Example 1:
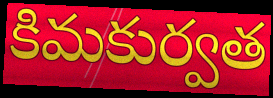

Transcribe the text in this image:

కిమకుర్వత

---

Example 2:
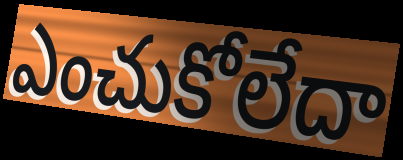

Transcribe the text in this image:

ఎంచుకోలేదా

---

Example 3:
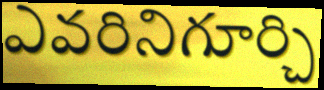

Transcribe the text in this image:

ఎవరినిగూర్చి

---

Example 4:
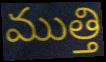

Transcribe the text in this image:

ముత్తి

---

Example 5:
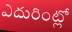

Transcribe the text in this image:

ఎదురింట్లో